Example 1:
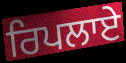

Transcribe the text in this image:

ਰਿਪਲਾਏ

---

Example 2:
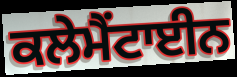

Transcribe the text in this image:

ਕਲੇਮੈਂਟਾਈਨ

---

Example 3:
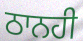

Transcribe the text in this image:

ਠਾਨਹੀ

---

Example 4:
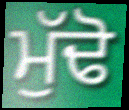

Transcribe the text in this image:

ਮੁੱਢੋ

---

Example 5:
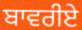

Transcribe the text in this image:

ਬਾਵਰੀਏ